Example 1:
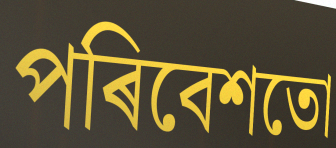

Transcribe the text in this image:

পৰিবেশতো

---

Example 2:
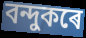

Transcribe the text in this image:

বন্দুকৰে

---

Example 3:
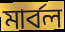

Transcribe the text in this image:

মাৰ্বল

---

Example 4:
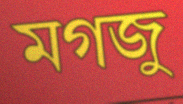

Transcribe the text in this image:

মগজু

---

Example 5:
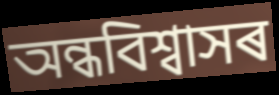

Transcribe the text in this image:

অন্ধবিশ্বাসৰ